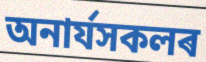
অনাৰ্যসকলৰ